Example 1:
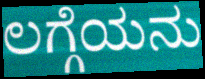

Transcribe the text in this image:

ಲಗ್ಗೆಯನು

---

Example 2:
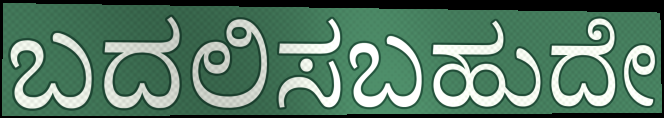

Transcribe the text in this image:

ಬದಲಿಸಬಹುದೇ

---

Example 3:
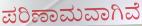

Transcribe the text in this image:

ಪರಿಣಾಮವಾಗಿವೆ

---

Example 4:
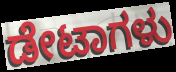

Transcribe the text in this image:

ಡೇಟಾಗಳು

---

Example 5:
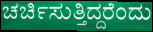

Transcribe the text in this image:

ಚರ್ಚಿಸುತ್ತಿದ್ದರೆಂದು